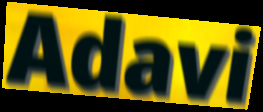
Adavi